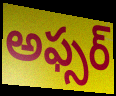
అఫ్సర్